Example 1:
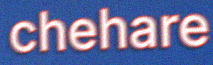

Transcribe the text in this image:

chehare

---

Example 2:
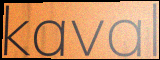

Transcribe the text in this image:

kaval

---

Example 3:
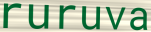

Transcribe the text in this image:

ruruva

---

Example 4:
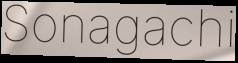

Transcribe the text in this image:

Sonagachi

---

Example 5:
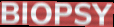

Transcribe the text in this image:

BIOPSY